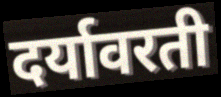
दर्यावरती